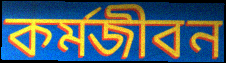
কর্মজীবন